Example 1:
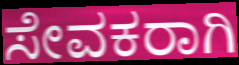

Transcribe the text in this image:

ಸೇವಕರಾಗಿ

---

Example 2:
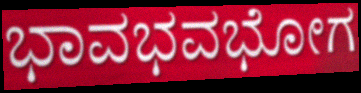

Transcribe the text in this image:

ಭಾವಭವಭೋಗ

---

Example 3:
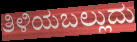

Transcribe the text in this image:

ತಿಳಿಯಬಲ್ಲುದು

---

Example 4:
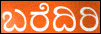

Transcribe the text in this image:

ಬರೆದಿರಿ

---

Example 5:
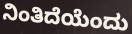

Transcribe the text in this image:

ನಿಂತಿದೆಯೆಂದು